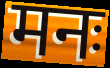
मनः